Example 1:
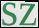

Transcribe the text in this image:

sz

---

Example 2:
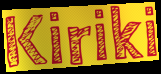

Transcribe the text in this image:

Kiriki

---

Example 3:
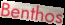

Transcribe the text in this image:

Benthos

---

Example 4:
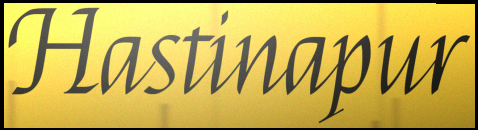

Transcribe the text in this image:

Hastinapur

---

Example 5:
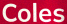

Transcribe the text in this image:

Coles